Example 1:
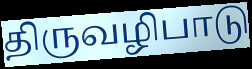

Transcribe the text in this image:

திருவழிபாடு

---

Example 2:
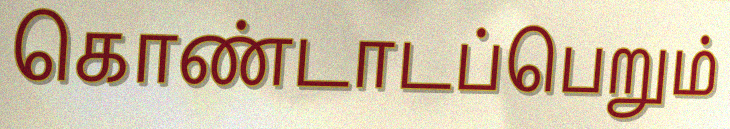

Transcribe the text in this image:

கொண்டாடப்பெறும்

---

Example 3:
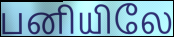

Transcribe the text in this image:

பனியிலே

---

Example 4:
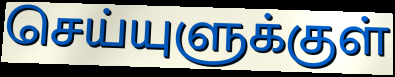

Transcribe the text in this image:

செய்யுளுக்குள்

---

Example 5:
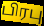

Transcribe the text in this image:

பிரபு